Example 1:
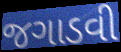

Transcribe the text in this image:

જગાડવી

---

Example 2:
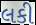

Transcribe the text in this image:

લકી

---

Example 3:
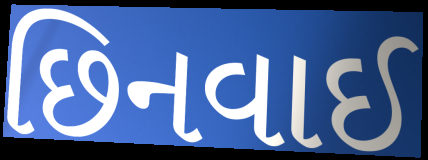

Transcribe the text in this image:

છિનવાઈ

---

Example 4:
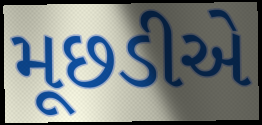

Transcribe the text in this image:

મૂછડીએ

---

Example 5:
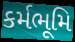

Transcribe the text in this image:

કર્મભૂમિ